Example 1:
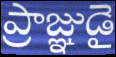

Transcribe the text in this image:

ప్రాజ్ఞుడై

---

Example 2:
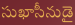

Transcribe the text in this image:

సుఖాసీనుడై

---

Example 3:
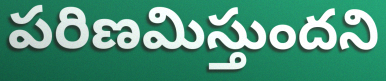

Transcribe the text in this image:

పరిణమిస్తుందని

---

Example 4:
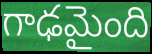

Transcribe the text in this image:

గాఢమైంది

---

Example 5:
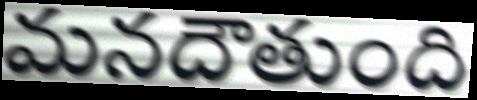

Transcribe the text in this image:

మనదౌతుంది